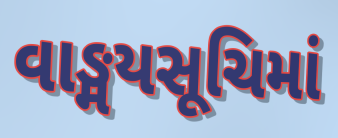
વાઙ્મયસૂચિમાં